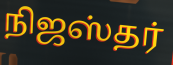
நிஜஸ்தர்